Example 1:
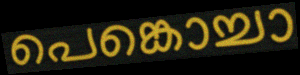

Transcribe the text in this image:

പെങ്കൊച്ചാ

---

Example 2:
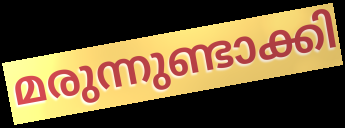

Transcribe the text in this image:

മരുന്നുണ്ടാക്കി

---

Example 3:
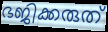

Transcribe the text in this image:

ഭജിക്കരുത്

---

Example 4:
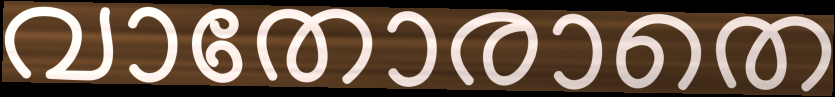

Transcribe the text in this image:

വാതോരാതെ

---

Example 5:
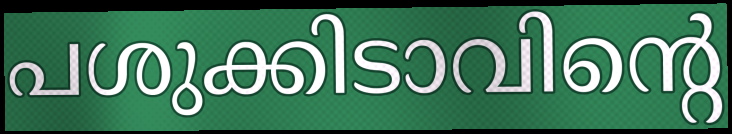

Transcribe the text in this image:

പശുക്കിടാവിന്റെ